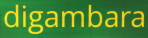
digambara